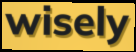
wisely